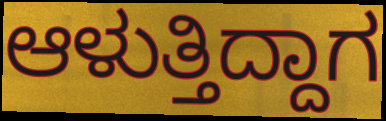
ಆಳುತ್ತಿದ್ದಾಗ